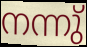
നന്നു്